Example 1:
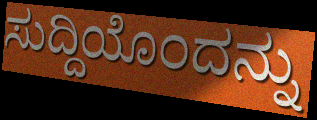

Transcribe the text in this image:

ಸುದ್ದಿಯೊಂದನ್ನು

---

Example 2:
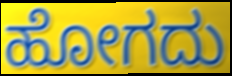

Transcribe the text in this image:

ಹೋಗದು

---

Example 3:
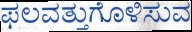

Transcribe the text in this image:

ಫಲವತ್ತುಗೊಳಿಸುವ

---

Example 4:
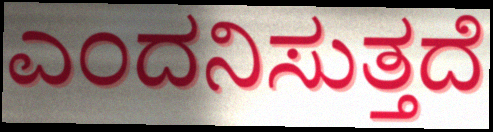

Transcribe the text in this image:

ಎಂದನಿಸುತ್ತದೆ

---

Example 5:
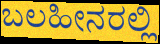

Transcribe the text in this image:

ಬಲಹೀನರಲ್ಲಿ